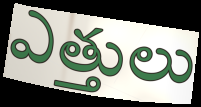
ఎత్తులు